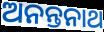
ଅନନ୍ତନାଥ